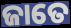
ଜାତେ